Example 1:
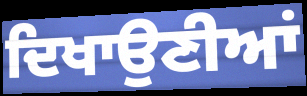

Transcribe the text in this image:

ਦਿਖਾਉਣੀਆਂ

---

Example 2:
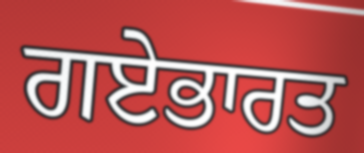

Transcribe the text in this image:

ਗਏਭਾਰਤ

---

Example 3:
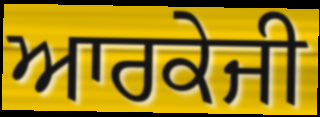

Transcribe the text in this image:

ਆਰਕੇਜੀ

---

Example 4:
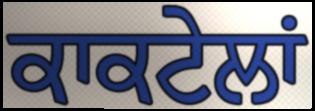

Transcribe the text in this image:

ਕਾਕਟੇਲਾਂ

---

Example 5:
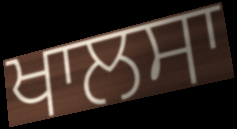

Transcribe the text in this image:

ਖਾਲਸਾ